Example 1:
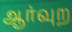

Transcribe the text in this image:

ஆர்வுற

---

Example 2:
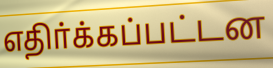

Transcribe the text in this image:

எதிர்க்கப்பட்டன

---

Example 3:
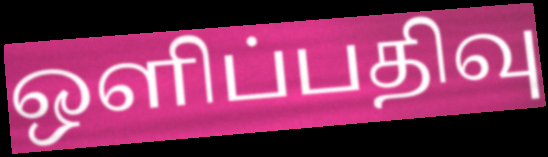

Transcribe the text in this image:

ஒளிப்பதிவு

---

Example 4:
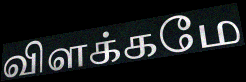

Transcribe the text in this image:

விளக்கமே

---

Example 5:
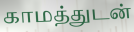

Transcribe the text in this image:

காமத்துடன்